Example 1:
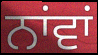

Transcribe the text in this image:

ਨਾਂਵਾਂ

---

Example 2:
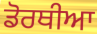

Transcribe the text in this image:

ਡੋਰਥੀਆ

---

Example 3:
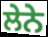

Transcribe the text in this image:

ਲੇਨੇ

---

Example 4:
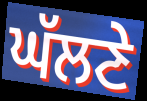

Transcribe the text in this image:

ਘੱਲਣੇ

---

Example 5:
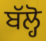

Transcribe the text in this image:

ਬੱਲ੍ਹੋ